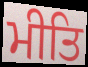
ਮੀਤਿ